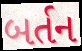
બર્તન